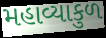
મહાવ્યાકુળ